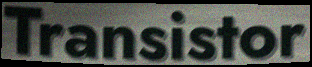
Transistor